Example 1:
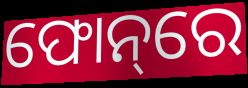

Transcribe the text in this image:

ଫୋନ୍‌ରେ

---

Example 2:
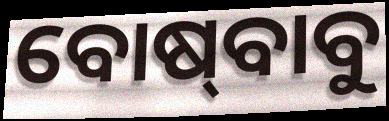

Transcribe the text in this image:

ବୋଷ୍‍ବାବୁ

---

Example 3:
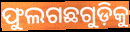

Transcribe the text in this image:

ଫୁଲଗଛଗୁଡ଼ିକୁ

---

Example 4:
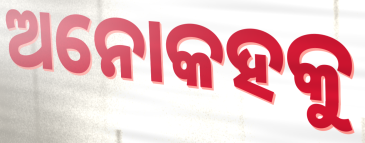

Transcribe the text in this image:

ଅନୋକହକୁ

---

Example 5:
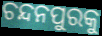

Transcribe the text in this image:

ଚନ୍ଦନପୁରକୁ